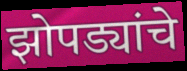
झोपड्यांचे